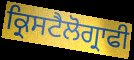
ਕ੍ਰਿਸਟੈਲੋਗ੍ਰਾਫੀ